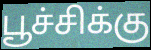
பூச்சிக்கு